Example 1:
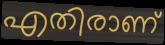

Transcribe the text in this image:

എതിരാണ്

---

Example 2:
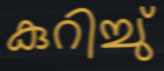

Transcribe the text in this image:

കുറിച്ചു്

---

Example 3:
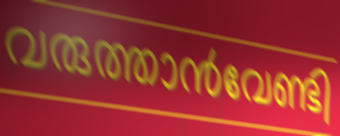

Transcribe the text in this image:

വരുത്താൻവേണ്ടി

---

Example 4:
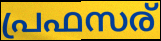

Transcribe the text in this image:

പ്രഫസര്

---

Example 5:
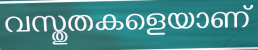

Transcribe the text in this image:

വസ്തുതകളെയാണ്